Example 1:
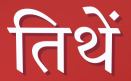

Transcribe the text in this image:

तिथें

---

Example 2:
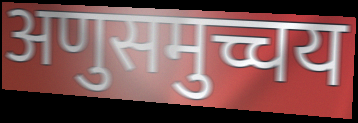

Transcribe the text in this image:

अणुसमुच्चय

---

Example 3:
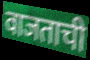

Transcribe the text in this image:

वाजताची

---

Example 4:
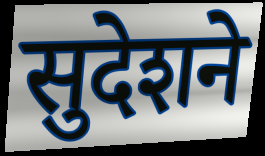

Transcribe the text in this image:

सुदेशने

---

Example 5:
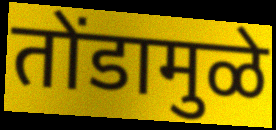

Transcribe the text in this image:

तोंडामुळे